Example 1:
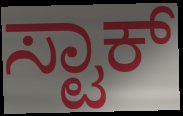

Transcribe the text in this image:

ಸ್ಟಾಕ್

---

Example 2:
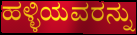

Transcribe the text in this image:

ಹಳ್ಳಿಯವರನ್ನು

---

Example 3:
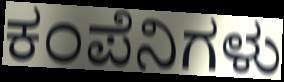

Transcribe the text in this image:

ಕಂಪೆನಿಗಳು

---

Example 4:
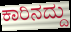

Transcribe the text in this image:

ಕಾರಿನದ್ದು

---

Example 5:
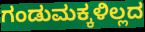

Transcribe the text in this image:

ಗಂಡುಮಕ್ಕಳಿಲ್ಲದ